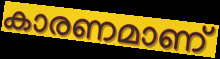
കാരണമാണ്